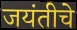
जयंतीचे